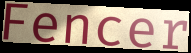
Fencer